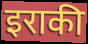
इराकी